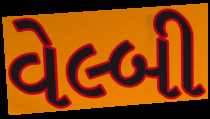
વેલ્બી